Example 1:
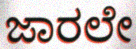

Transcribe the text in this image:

ಜಾರಲೇ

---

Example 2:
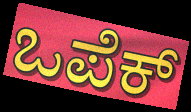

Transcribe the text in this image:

ಒಪೆಕ್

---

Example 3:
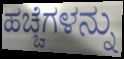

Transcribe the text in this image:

ಹಚ್ಚೆಗಳನ್ನು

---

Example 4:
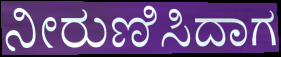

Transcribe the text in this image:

ನೀರುಣಿಸಿದಾಗ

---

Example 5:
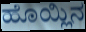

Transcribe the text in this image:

ಹೊಯ್ಲಿನ